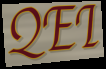
QEI